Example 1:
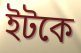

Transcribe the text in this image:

ইটকে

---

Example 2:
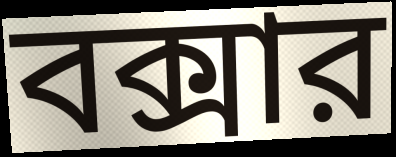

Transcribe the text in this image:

বক্সার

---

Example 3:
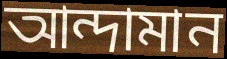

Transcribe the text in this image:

আন্দামান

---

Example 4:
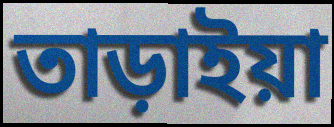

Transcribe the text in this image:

তাড়াইয়া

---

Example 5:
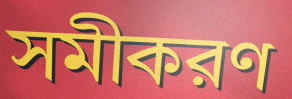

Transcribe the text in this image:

সমীকরণ